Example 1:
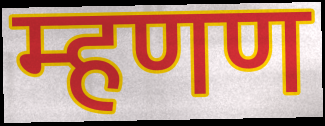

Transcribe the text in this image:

म्हणण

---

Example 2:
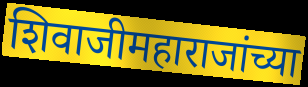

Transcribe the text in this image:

शिवाजीमहाराजांच्या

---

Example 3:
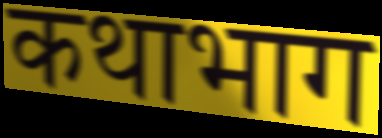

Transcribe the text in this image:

कथाभाग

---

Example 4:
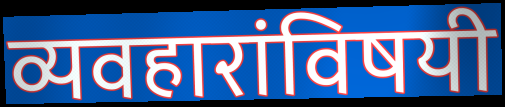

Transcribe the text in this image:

व्यवहारांविषयी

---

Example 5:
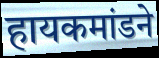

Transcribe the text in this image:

हायकमांडने